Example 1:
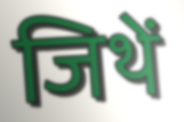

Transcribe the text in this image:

जिथें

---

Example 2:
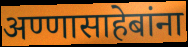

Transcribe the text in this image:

अण्णासाहेबांना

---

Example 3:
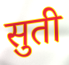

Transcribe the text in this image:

सुती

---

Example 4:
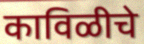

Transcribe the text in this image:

काविळीचे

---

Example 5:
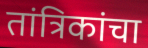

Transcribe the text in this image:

तांत्रिकांचा